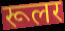
रूलर